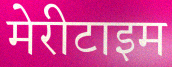
मेरीटाइम